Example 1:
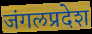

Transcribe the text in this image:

जंगलप्रदेश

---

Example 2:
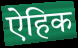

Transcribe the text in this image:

ऐहिक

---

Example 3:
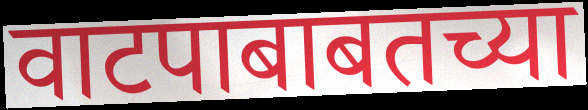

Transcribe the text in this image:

वाटपाबाबतच्या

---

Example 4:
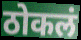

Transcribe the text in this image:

ठोकलं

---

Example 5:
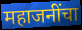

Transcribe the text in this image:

महाजनींचा